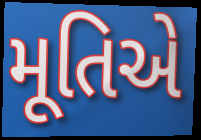
મૂતિએ